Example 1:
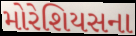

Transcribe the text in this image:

મોરેશિયસના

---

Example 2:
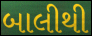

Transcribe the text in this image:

બાલીથી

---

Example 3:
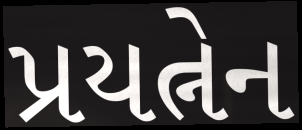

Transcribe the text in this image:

પ્રયત્નેન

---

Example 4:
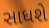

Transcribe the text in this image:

સાધશે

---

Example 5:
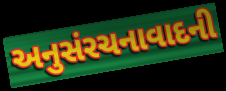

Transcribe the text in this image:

અનુસંરચનાવાદની